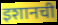
इशानची